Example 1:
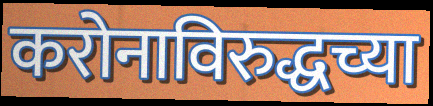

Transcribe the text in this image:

करोनाविरुद्धच्या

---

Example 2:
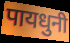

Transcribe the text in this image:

पायधुनी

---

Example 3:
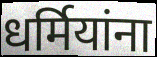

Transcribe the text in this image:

धर्मियांना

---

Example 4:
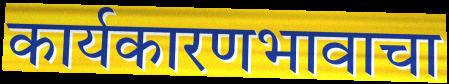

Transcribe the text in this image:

कार्यकारणभावाचा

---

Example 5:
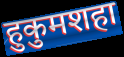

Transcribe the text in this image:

हुकुमशहा